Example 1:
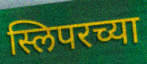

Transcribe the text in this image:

स्लिपरच्या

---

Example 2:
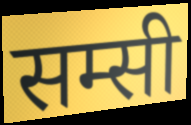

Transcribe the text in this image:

सम्सी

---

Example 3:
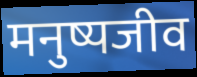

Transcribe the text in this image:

मनुष्यजीव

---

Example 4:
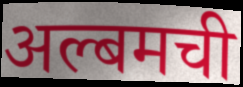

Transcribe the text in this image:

अल्बमची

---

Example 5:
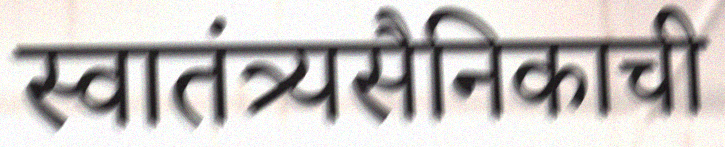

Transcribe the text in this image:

स्वातंत्र्यसैनिकाची